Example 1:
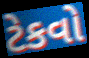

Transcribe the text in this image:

ટેકવો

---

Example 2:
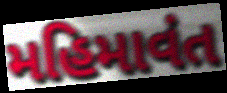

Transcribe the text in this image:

મહિમાવંત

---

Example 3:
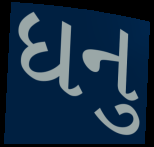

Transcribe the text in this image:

ધનુ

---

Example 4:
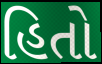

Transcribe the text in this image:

હિતો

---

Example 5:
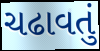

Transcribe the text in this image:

ચઢાવતું